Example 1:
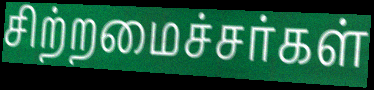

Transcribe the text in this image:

சிற்றமைச்சர்கள்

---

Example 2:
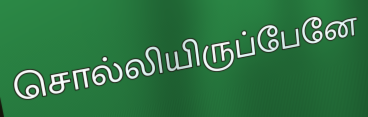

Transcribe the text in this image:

சொல்லியிருப்பேனே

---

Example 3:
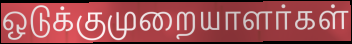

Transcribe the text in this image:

ஒடுக்குமுறையாளர்கள்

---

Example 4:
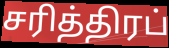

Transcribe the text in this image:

சரித்திரப்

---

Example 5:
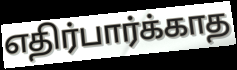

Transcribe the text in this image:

எதிர்பார்க்காத